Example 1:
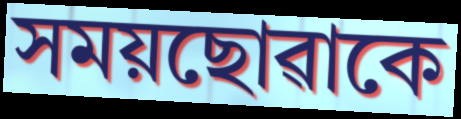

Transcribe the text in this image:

সময়ছোৱাকে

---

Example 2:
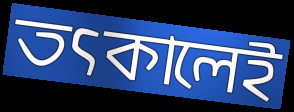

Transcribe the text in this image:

তৎকালেই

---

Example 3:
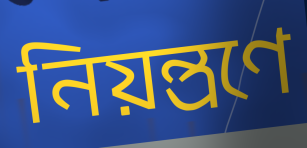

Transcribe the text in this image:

নিয়ন্ত্ৰণে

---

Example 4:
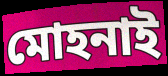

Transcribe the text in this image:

মোহনাই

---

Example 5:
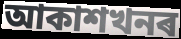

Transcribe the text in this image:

আকাশখনৰ